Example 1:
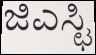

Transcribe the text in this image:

ಜಿಎಸ್ಟಿ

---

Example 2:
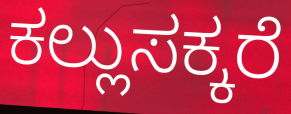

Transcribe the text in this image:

ಕಲ್ಲುಸಕ್ಕರೆ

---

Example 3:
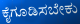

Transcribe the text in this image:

ಕೈಗೂಡಿಸಬೇಕು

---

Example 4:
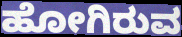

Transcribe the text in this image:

ಹೋಗಿರುವ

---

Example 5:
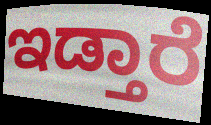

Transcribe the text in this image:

ಇಡ್ತಾರೆ